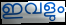
ഇവളും